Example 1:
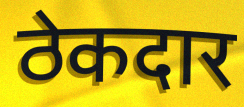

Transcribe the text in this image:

ठेकदार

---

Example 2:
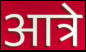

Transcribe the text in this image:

आत्रे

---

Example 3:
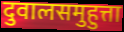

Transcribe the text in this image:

दुवालसमुहुत्ता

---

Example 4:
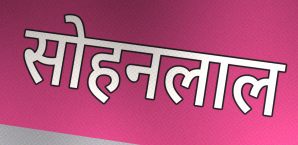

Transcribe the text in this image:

सोहनलाल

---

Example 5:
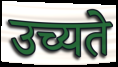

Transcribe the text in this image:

उच्यते